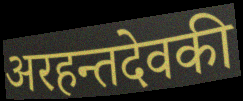
अरहन्तदेवकी